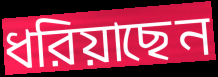
ধরিয়াছেন